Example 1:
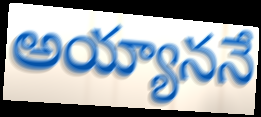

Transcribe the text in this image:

అయ్యాననే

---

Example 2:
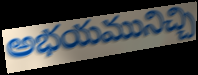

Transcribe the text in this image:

అభయమునిచ్చి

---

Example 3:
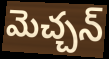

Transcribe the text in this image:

మెచ్చన్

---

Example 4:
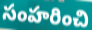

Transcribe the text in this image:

సంహరించి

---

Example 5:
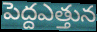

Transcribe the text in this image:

పెద్దఎత్తున